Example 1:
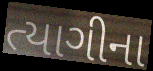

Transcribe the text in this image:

ત્યાગીના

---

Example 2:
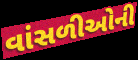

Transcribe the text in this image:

વાંસળીઓની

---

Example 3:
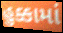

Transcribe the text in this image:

હુક્કામાં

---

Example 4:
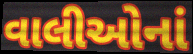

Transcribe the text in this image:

વાલીઓનાં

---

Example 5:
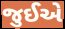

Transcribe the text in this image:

જુઈએ